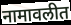
नामावलीत